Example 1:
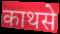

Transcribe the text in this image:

काथसे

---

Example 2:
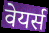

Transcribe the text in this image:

वेयर्स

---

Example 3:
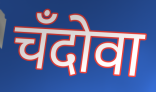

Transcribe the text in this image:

चँदोवा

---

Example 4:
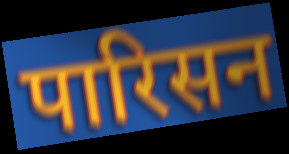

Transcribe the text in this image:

पारिसन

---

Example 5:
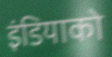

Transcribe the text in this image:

इंडियाको